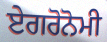
ਏਗਰੋਨੋਮੀ